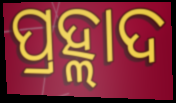
ପ୍ରହ୍ଲାଦ